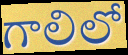
గాలిలో